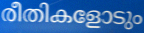
രീതികളോടും